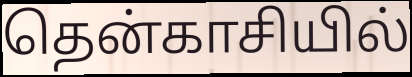
தென்காசியில்